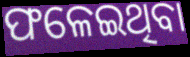
ଫଳେଇଥିବା